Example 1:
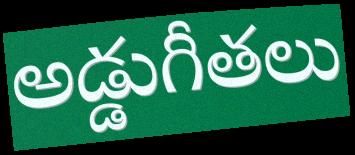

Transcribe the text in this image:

అడ్డుగీతలు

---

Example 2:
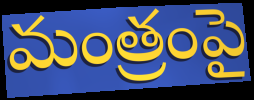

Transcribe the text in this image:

మంత్రంపై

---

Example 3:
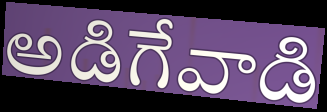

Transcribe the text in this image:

అడిగేవాడి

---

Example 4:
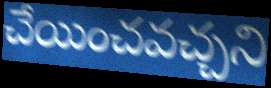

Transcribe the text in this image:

చేయించవచ్చని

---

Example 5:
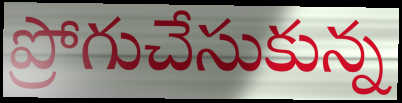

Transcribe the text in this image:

ప్రోగుచేసుకున్న